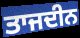
ਤਾਜਦੀਨ